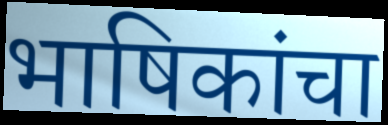
भाषिकांचा